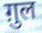
ग़ुल